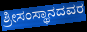
ಶ್ರೀಸಂಸ್ಥಾನದವರ